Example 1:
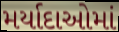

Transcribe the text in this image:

મર્યાદાઓમાં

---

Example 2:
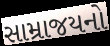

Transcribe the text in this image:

સામ્રાજયનો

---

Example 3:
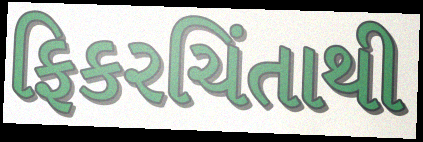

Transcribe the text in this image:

ફિકરચિંતાથી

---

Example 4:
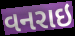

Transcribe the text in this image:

વનરાઇ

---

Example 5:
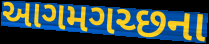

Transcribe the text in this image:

આગમગચ્છના